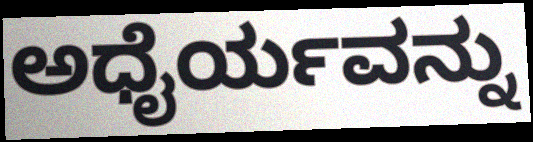
ಅಧೈರ್ಯವನ್ನು